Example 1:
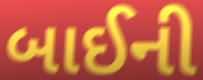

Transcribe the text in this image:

બાઈની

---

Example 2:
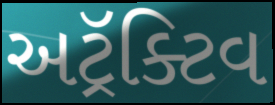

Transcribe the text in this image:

અટ્રૅક્ટિવ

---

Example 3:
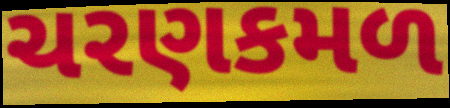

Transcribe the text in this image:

ચરણકમળ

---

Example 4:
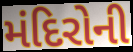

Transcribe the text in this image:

મંદિરોની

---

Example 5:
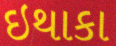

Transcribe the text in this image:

ઇથાકા